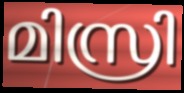
മിസ്രി